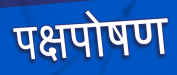
पक्षपोषण